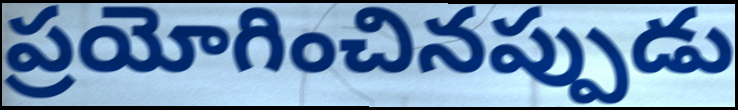
ప్రయోగించినప్పుడు